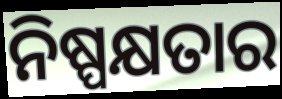
ନିଷ୍ପକ୍ଷତାର